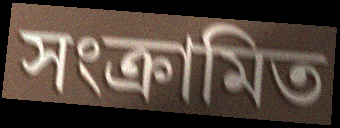
সংক্রামিত